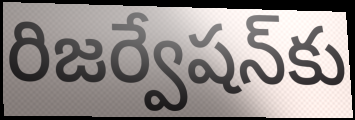
రిజర్వేషన్‌కు